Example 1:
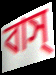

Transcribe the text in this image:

বাস্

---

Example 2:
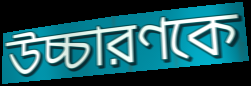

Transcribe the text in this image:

উচ্চারণকে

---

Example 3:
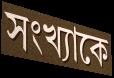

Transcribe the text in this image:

সংখ্যাকে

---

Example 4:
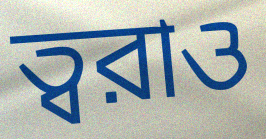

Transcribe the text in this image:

ত্বরাও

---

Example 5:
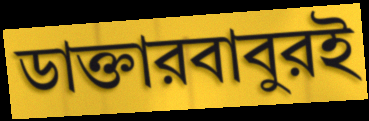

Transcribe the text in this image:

ডাক্তারবাবুরই